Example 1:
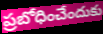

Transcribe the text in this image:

ప్రబోధించేందుకు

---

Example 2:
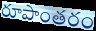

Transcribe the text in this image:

రూపాంతరం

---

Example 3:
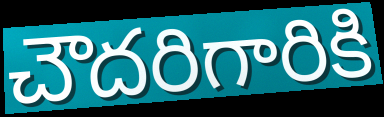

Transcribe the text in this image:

చౌదరిగారికి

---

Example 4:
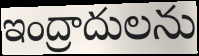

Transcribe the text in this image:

ఇంద్రాదులను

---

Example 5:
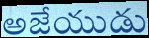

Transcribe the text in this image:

అజేయుడు